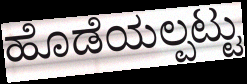
ಹೊಡೆಯಲ್ಪಟ್ಟು